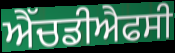
ਐੱਚਡੀਐਫਸੀ